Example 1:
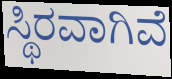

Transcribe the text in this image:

ಸ್ಥಿರವಾಗಿವೆ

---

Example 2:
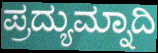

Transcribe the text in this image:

ಪ್ರದ್ಯುಮ್ನಾದಿ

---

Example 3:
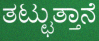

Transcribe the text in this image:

ತಟ್ಟುತ್ತಾನೆ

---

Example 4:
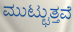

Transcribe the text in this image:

ಮುಟ್ಟುತ್ತವೆ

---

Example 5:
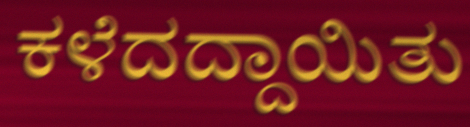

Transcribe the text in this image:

ಕಳೆದದ್ದಾಯಿತು